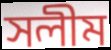
সলীম